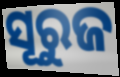
ସୂରୁଜ